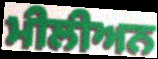
ਮੀਲੀਅਨ